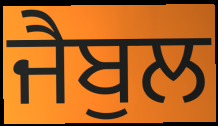
ਜੈਬੁਲ